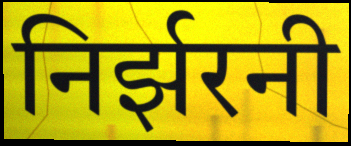
निर्झरनी